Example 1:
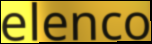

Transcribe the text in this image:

elenco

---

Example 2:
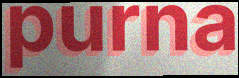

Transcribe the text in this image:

purna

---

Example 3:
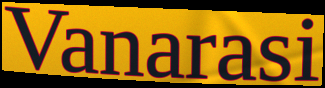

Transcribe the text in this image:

Vanarasi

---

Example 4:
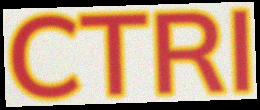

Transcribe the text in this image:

CTRI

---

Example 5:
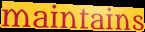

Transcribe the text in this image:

maintains